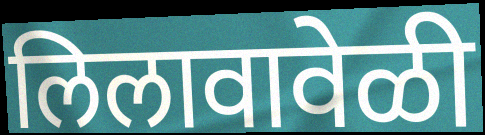
लिलावावेळी